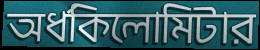
অর্ধকিলোমিটার